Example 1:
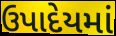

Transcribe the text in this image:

ઉપાદેયમાં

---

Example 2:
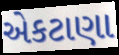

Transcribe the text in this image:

એકટાણા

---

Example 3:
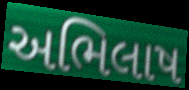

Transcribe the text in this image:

અભિલાષ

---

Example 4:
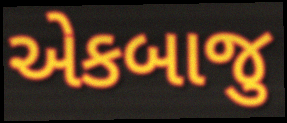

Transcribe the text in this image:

એકબાજુ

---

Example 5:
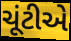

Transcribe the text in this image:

ચૂંટીએ